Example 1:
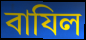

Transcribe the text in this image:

বাযিল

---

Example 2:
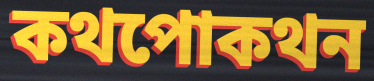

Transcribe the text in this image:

কথপোকথন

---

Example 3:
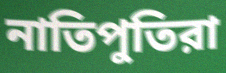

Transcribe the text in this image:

নাতিপুতিরা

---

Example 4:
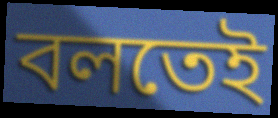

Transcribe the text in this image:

বলতেই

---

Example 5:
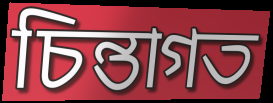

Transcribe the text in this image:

চিন্তাগত